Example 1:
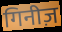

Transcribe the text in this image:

गिनीज़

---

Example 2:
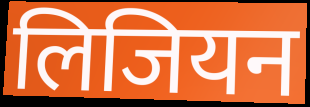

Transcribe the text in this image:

लिजियन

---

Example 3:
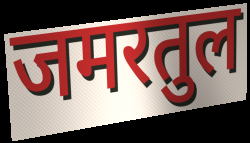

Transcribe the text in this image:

जमरतुल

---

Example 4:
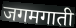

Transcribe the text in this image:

जगमगाती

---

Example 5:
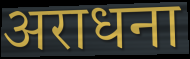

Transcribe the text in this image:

अराधना